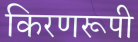
किरणरूपी